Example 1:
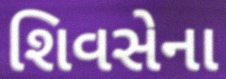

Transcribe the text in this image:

શિવસેના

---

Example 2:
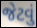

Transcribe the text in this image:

જેટવું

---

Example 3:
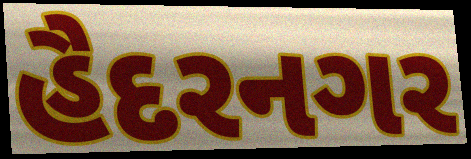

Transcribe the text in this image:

હૈદરનગર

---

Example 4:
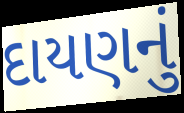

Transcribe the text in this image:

દાયણનું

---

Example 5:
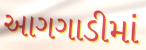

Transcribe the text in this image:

આગગાડીમાં